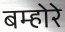
बम्होरे